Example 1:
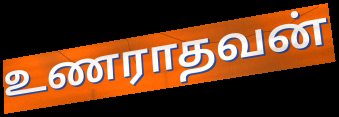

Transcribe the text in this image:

உணராதவன்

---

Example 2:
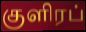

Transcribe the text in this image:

குளிரப்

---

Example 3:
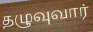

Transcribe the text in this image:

தழுவுவார்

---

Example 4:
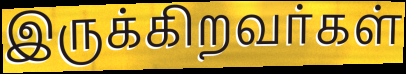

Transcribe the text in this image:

இருக்கிறவர்கள்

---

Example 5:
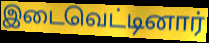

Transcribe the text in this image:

இடைவெட்டினார்